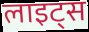
लाइट्स